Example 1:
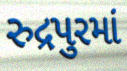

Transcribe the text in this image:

રુદ્રપુરમાં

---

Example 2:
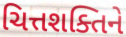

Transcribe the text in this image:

ચિત્તશક્તિને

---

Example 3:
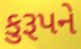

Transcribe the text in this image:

કુરૂપને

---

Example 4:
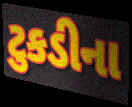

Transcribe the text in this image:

ટુકડીના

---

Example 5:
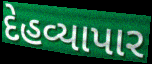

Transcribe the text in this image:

દેહવ્યાપાર